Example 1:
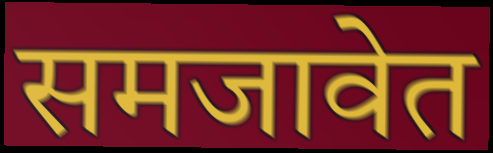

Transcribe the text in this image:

समजावेत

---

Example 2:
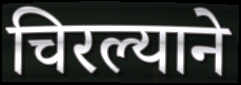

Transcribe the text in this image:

चिरल्याने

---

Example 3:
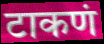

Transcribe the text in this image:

टाकणं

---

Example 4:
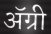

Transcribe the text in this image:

ॲग्री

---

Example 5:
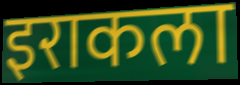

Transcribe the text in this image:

इराकला